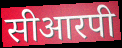
सीआरपी